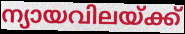
ന്യായവിലയ്ക്ക്